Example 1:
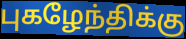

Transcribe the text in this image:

புகழேந்திக்கு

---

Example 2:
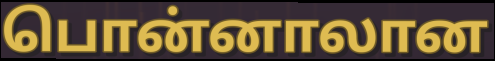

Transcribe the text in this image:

பொன்னாலான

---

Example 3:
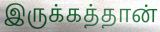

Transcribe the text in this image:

இருக்கத்தான்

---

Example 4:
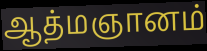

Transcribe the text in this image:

ஆத்மஞானம்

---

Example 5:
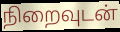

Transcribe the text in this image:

நிறைவுடன்